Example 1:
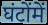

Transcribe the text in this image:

घंटोंमें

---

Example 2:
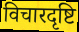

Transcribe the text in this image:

विचारदृष्टि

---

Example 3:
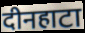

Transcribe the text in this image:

दीनहाटा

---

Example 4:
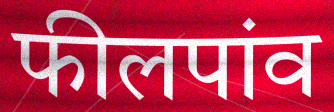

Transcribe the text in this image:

फीलपांव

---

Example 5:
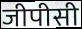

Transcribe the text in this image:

जीपीसी